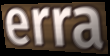
erra